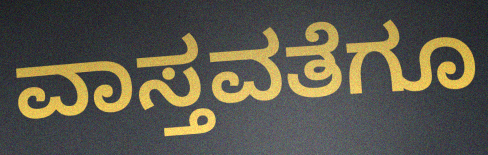
ವಾಸ್ತವತೆಗೂ